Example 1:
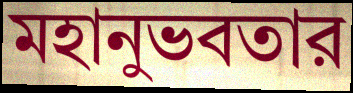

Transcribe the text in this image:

মহানুভবতার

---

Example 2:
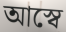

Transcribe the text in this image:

আস্বে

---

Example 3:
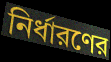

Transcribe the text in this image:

নির্ধারণের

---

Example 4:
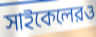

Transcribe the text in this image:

সাইকেলেরও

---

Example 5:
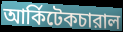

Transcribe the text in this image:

আর্কিটেকচারাল